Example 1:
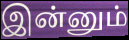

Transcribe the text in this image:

இன்னும்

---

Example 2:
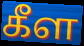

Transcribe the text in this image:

கீள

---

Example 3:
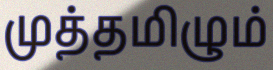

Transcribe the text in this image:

முத்தமிழும்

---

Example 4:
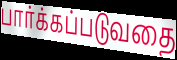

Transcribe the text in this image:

பார்க்கப்படுவதை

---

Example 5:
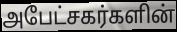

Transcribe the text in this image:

அபேட்சகர்களின்